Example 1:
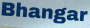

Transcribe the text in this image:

Bhangar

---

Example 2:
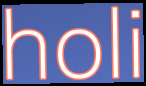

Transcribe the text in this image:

holi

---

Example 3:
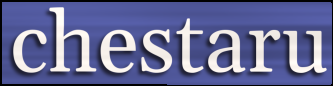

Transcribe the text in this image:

chestaru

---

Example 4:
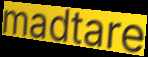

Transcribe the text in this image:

madtare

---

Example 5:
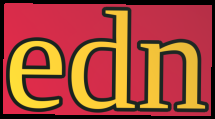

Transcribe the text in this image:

edn